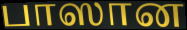
பாஸான